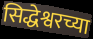
सिद्धेश्वरच्या